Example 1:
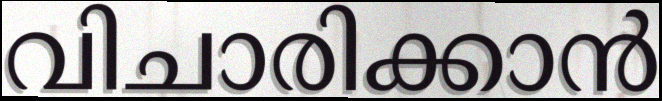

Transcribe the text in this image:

വിചാരിക്കാൻ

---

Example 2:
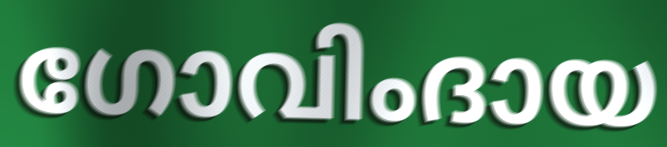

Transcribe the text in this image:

ഗോവിംദായ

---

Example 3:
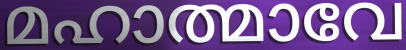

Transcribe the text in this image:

മഹാത്മാവേ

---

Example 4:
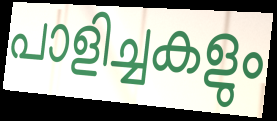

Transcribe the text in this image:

പാളിച്ചകളും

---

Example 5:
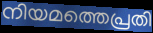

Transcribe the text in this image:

നിയമത്തെപ്രതി